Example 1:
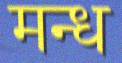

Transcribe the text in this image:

मन्ध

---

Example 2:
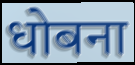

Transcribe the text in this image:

धोबना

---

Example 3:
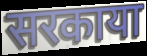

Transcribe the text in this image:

सरकाया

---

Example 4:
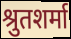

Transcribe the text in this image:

श्रुतशर्मा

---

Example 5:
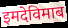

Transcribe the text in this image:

इमदेविमाब